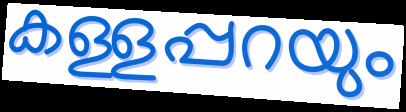
കള്ളപ്പറയും